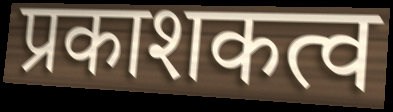
प्रकाशकत्व